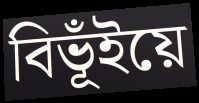
বিভূঁইয়ে